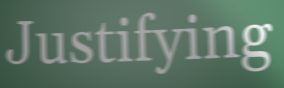
Justifying